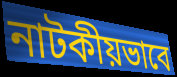
নাটকীয়ভাবে